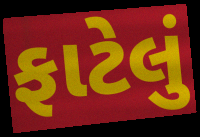
ફાટેલું